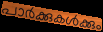
പാർക്കുകൾക്കും